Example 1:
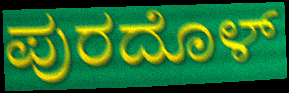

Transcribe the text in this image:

ಪುರದೊಳ್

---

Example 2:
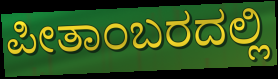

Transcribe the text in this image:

ಪೀತಾಂಬರದಲ್ಲಿ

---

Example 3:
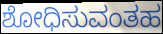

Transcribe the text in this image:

ಶೋಧಿಸುವಂತಹ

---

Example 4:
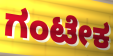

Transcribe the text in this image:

ಗಂಟೇಕ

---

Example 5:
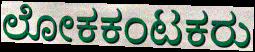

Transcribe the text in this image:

ಲೋಕಕಂಟಕರು